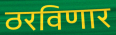
ठरविणार